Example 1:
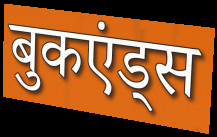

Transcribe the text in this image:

बुकएंड्स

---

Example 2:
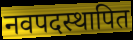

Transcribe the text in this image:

नवपदस्थापित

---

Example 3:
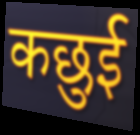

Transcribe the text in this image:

कछुई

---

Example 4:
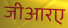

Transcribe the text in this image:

जीआरए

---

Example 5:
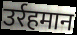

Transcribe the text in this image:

उर्रहमान